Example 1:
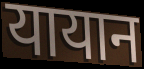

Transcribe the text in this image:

यायान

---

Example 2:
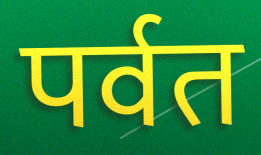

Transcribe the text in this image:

पर्वत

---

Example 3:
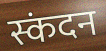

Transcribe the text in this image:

स्कंदन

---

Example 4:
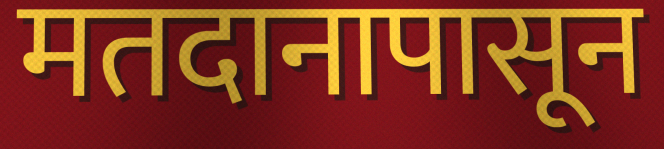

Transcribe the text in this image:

मतदानापासून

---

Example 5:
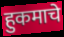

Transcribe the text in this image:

हुकमाचे